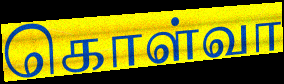
கொள்வா